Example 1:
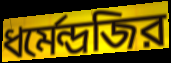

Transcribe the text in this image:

ধর্মেন্দ্রজির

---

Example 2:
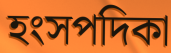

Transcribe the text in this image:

হংসপদিকা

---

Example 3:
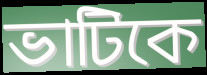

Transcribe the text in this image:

ভাটিকে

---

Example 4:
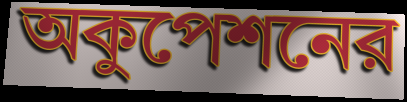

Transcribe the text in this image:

অকুপেশনের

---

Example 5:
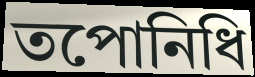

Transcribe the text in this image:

তপোনিধি